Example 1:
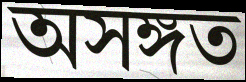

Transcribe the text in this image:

অসঙ্গত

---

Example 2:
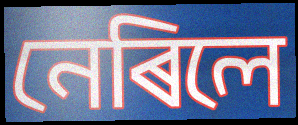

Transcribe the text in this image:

নেৰিলে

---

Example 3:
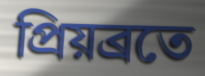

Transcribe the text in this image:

প্ৰিয়ব্ৰতে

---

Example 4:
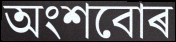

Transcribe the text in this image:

অংশবোৰ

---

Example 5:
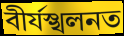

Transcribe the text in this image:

বীৰ্যস্খলনত